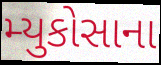
મ્યુકોસાના